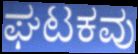
ಘಟಕವು